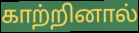
காற்றினால்